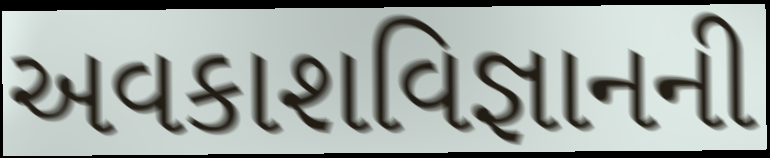
અવકાશવિજ્ઞાનની